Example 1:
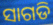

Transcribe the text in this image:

ସାଗଡି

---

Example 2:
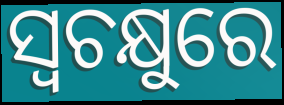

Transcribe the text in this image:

ସ୍ୱଚକ୍ଷୁରେ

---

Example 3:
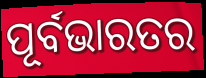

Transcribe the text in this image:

ପୂର୍ବଭାରତର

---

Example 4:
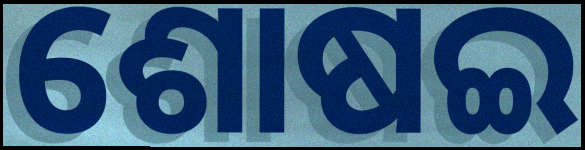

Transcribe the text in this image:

ଶୋଷଇ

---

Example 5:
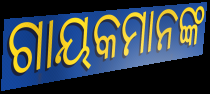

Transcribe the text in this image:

ଗାୟକମାନଙ୍କ